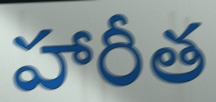
హారీత